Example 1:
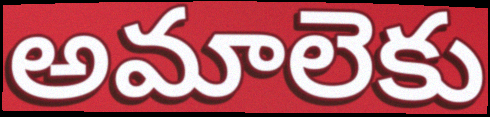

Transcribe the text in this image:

అమాలెకు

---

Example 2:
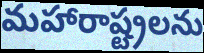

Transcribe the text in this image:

మహారాష్ట్రలను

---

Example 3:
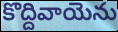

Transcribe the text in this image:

కొద్దివాయెను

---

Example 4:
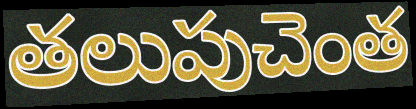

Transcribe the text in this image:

తలుపుచెంత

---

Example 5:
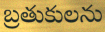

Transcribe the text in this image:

బ్రతుకులను